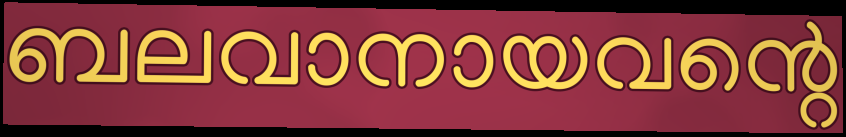
ബലവാനായവന്റെ